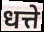
धत्ते